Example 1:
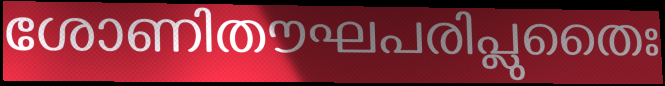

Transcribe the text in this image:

ശോണിതൗഘപരിപ്ലുതൈഃ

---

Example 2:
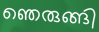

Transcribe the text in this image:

ഞെരുങ്ങി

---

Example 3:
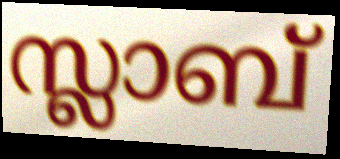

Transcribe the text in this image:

സ്ലാബ്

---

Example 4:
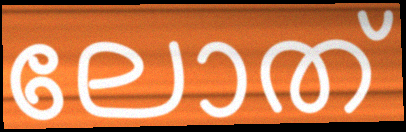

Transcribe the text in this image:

ലോത്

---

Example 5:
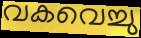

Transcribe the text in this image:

വകവെച്ചു